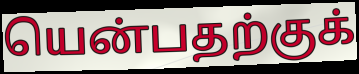
யென்பதற்குக்